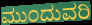
ಮುಂದುವರಿ